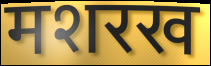
मशरख